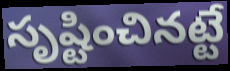
సృష్టించినట్టే